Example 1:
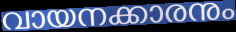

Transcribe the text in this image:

വായനക്കാരനും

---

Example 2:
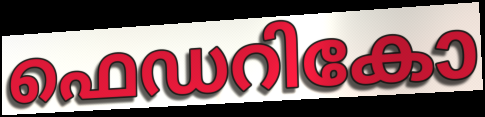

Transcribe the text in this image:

ഫെഡറികോ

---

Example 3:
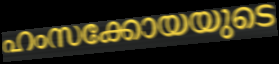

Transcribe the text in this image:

ഹംസക്കോയയുടെ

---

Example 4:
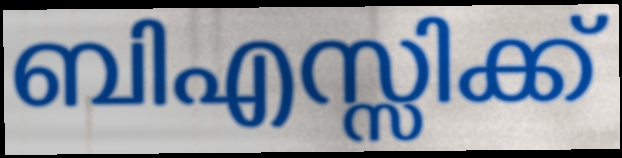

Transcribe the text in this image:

ബിഎസ്സിക്ക്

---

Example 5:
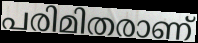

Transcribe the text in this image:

പരിമിതരാണ്